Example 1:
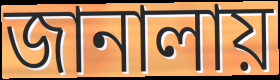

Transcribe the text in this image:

জানালায়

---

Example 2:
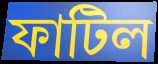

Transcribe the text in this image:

ফাটিল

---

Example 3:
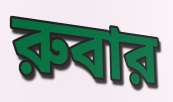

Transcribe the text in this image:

রুবার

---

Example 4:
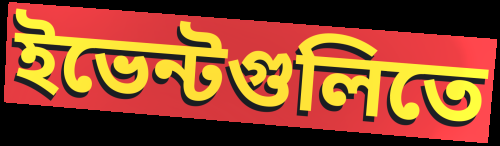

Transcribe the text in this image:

ইভেন্টগুলিতে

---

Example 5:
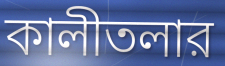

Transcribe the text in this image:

কালীতলার